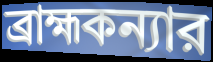
ব্রাহ্মকন্যার